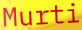
Murti